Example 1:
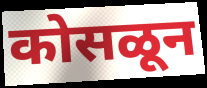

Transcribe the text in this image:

कोसळून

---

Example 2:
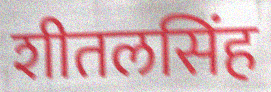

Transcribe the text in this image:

शीतलसिंह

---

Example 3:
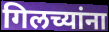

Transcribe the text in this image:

गिलच्यांना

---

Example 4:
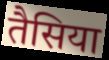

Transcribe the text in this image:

तैसिया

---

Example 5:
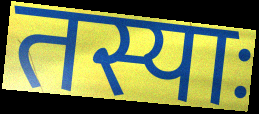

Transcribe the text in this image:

तस्याः